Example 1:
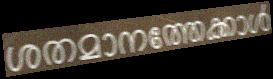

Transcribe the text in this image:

ശതമാനത്തേക്കാൾ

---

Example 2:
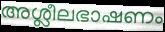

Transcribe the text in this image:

അശ്ലീലഭാഷണം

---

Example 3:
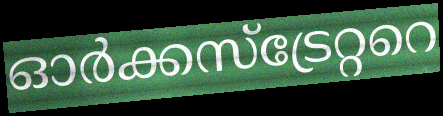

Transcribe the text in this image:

ഓർക്കസ്ട്രേറ്ററെ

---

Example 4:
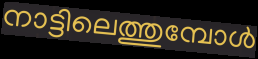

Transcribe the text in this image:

നാട്ടിലെത്തുമ്പോൾ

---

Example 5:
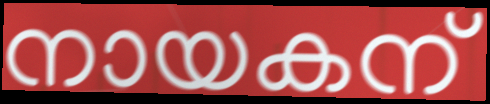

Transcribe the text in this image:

നായകന്